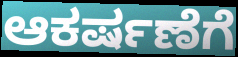
ಆಕರ್ಷಣೆಗೆ